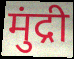
मुंद्री